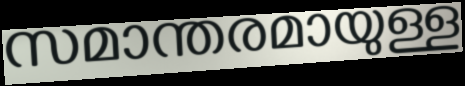
സമാന്തരമായുള്ള